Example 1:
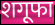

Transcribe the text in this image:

शगूफा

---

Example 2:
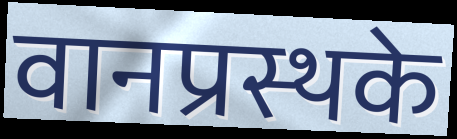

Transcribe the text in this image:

वानप्रस्थके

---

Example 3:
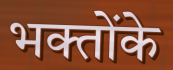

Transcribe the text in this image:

भक्तोंके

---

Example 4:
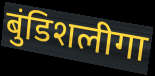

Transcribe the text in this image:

बुंडिशलीगा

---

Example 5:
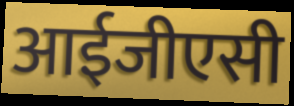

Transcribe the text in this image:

आईजीएसी